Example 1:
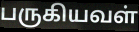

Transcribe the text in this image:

பருகியவள்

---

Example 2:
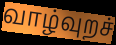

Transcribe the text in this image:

வாழ்வுறச்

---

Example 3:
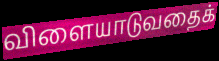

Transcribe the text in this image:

விளையாடுவதைக்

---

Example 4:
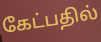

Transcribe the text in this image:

கேட்பதில்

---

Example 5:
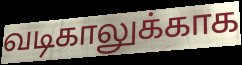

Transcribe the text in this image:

வடிகாலுக்காக